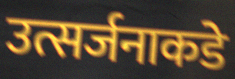
उत्सर्जनाकडे